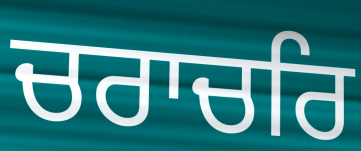
ਚਰਾਚਰਿ